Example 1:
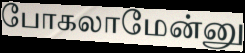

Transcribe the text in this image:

போகலாமேன்னு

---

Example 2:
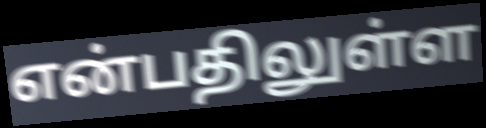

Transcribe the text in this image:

என்பதிலுள்ள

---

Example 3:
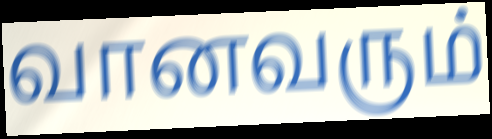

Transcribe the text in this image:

வானவரும்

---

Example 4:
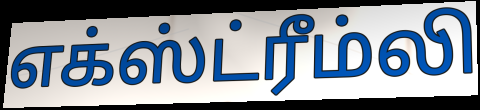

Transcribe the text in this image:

எக்ஸ்ட்ரீம்லி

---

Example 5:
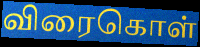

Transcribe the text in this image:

விரைகொள்